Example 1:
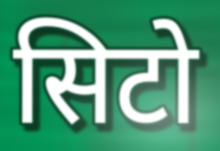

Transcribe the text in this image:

सिटो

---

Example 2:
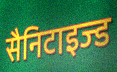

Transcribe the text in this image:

सैनिटाइज्ड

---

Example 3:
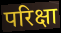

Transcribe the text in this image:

परिक्षा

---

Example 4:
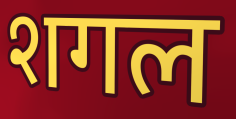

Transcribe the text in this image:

शगल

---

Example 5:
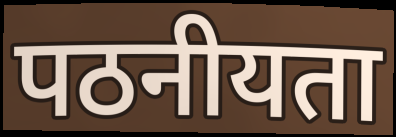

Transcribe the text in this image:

पठनीयता